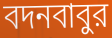
বদনবাবুর